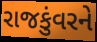
રાજકુંવરને